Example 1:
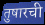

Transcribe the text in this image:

तुषारची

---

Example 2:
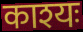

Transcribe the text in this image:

काश्यः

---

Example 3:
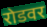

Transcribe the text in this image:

रोडवर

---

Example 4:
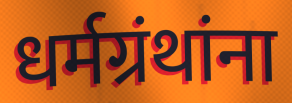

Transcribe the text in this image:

धर्मग्रंथांना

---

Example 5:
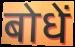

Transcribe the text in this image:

बोधें